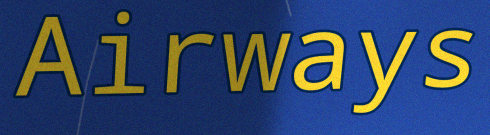
Airways